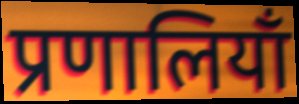
प्रणालियाँ